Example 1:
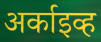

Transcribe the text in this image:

अर्काइव्ह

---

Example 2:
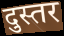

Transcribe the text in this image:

दुस्तर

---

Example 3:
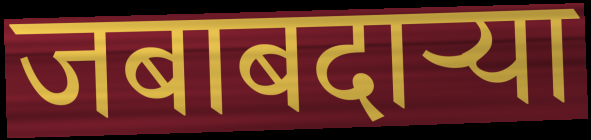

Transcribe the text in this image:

जबाबदार्‍या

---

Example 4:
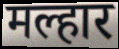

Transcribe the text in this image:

मल्हार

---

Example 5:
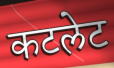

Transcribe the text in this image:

कटलेट